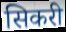
सिकरी